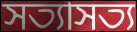
সত্যাসত্য